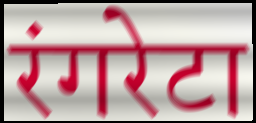
रंगरेटा